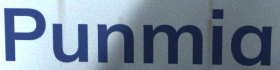
Punmia